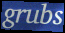
grubs